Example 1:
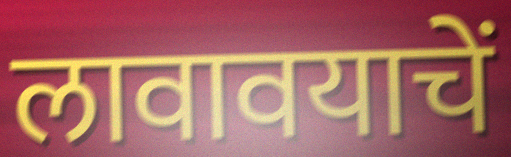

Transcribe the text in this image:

लावावयाचें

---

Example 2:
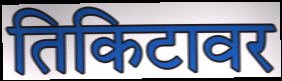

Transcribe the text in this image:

तिकिटावर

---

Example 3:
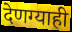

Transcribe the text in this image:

देणग्याही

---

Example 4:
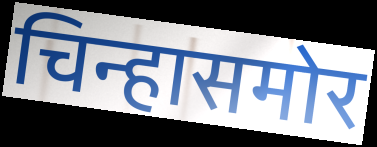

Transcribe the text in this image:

चिन्हासमोर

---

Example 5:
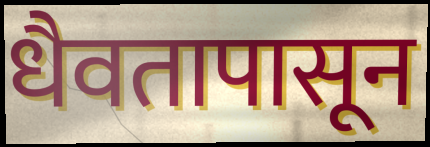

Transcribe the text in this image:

धैवतापासून